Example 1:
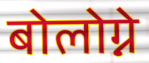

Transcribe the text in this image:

बोलोग्ने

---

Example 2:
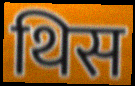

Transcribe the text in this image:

थिस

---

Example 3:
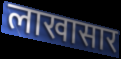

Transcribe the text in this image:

लाखासार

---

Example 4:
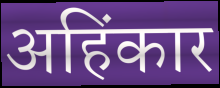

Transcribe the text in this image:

अहिंकार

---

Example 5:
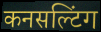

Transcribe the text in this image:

कनसल्टिंग